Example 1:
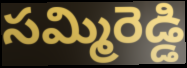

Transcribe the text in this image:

సమ్మిరెడ్డి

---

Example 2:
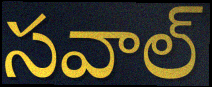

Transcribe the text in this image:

సవాల్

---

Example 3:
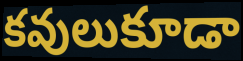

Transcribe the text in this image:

కవులుకూడా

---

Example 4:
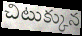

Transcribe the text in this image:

చిటుక్కున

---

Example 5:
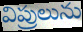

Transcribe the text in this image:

విప్రులును